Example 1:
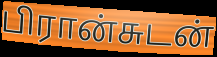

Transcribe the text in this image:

பிரான்சுடன்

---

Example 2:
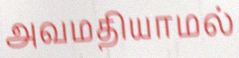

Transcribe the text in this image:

அவமதியாமல்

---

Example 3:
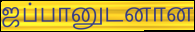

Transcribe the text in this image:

ஜப்பானுடனான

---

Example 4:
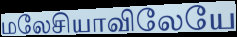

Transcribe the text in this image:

மலேசியாவிலேயே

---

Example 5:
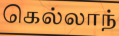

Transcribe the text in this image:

கெல்லாந்